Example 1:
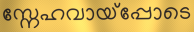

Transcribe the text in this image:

സ്നേഹവായ്പ്പോടെ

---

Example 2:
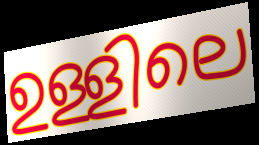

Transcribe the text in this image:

ഉള്ളിലെ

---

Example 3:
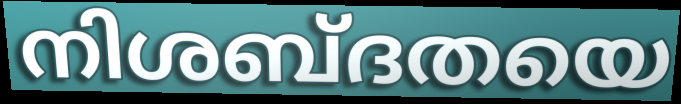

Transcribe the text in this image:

നിശബ്ദതയെ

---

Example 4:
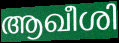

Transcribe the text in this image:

ആഖീശി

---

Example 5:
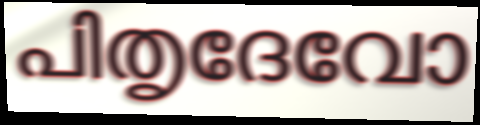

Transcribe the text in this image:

പിതൃദേവോ